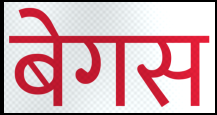
बेगस